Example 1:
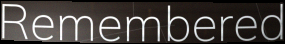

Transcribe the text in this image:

Remembered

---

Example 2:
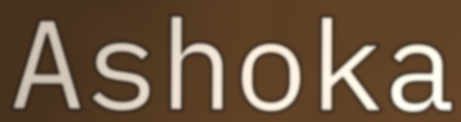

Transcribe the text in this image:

Ashoka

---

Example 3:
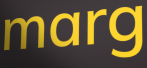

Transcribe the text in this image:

marg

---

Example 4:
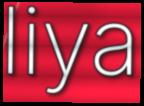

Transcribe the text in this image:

liya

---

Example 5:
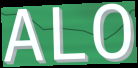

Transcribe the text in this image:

ALO